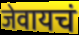
जेवायचं